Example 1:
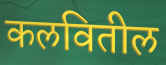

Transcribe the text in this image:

कलवितील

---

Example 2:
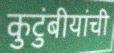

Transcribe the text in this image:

कुटुंबीयांची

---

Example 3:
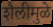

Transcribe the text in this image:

शैलीमुळे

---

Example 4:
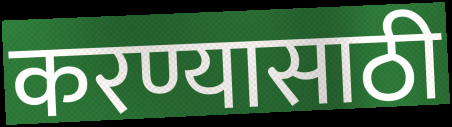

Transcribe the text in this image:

करण्यासाठी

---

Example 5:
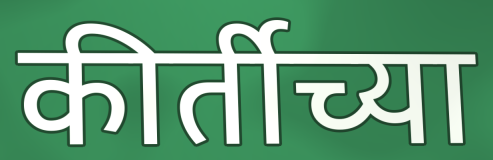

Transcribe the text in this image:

कीर्तीच्या